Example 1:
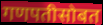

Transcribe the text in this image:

गणपतीसोबत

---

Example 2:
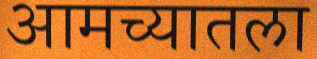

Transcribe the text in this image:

आमच्यातला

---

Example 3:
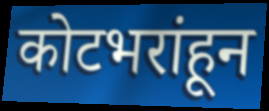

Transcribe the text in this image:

कोटभरांहून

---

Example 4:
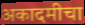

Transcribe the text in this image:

अकादमीचा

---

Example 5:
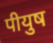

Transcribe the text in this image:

पीयुष